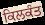
ਕਿਲਕੰਤ